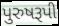
પુરુષરૂપી